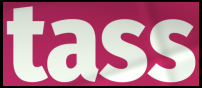
tass